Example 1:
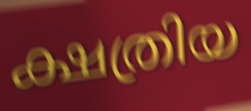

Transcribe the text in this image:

ക്ഷത്രിയ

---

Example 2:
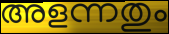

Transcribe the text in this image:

അളന്നതും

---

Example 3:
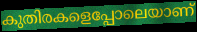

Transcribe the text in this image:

കുതിരകളെപ്പോലെയാണ്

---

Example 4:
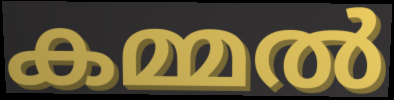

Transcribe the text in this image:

കമ്മൽ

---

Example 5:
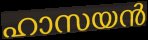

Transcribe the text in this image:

ഹാസയൻ